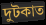
দুটকাত